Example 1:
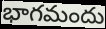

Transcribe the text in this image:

భాగమందు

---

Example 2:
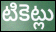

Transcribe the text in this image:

టికెట్లు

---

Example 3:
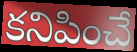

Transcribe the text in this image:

కనిపించే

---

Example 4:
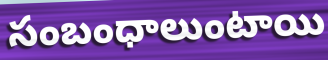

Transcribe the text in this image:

సంబంధాలుంటాయి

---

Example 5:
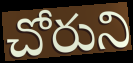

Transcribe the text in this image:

చోరుని